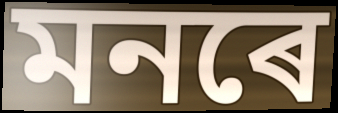
মনৰে